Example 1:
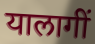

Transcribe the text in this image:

यालागीं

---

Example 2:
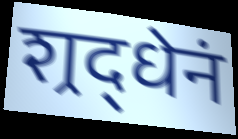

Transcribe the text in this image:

श्रद्धेनं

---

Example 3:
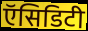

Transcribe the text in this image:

ऍसिडिटी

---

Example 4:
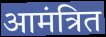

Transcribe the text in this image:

आमंत्रित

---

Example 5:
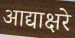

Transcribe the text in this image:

आद्याक्षरे